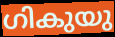
ഗികുയു